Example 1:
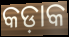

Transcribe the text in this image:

କଡ଼ାକ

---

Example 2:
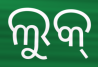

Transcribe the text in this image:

ଲୁକ୍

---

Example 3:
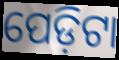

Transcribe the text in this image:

ପେଡ଼ିଟା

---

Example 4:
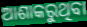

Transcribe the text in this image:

ଆଶାକରୁଥିବା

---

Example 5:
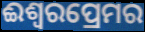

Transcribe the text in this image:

ଈଶ୍ୱରପ୍ରେମର